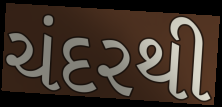
ચંદરથી